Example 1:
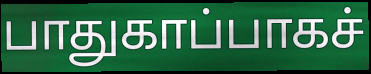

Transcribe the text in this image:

பாதுகாப்பாகச்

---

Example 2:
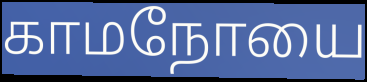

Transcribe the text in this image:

காமநோயை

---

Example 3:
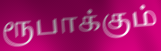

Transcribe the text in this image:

ரூபாக்கும்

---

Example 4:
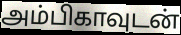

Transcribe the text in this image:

அம்பிகாவுடன்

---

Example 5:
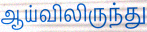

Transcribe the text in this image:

ஆய்விலிருந்து